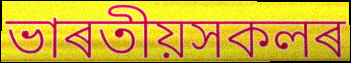
ভাৰতীয়সকলৰ